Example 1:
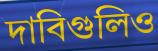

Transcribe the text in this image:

দাবিগুলিও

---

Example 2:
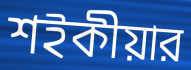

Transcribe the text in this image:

শইকীয়ার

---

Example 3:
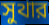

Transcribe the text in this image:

সুথার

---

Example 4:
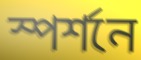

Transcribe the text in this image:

স্পর্শনে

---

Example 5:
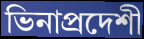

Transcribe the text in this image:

ভিনাপ্রদেশী